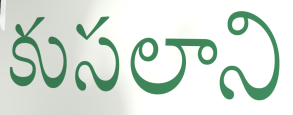
కుసలాని